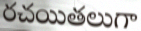
రచయితలుగా